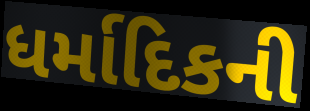
ધર્માદિકની